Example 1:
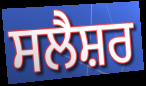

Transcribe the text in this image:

ਸਲੈਸ਼ਰ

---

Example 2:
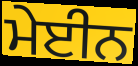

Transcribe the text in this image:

ਮੇਈਨ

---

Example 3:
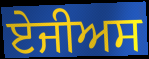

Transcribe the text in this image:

ਏਜੀਅਸ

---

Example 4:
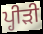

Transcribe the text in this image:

ਪ੍ਹੀੜੀ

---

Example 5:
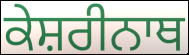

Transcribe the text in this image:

ਕੇਸ਼ਰੀਨਾਥ